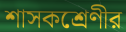
শাসকশ্রেণীর